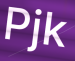
Pjk